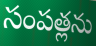
సంపత్లను